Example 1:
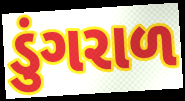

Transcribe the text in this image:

ડુંગરાળ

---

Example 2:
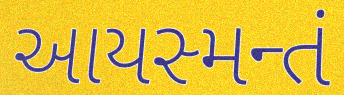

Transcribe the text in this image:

આયસ્મન્તં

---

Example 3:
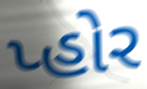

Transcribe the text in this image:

પ્હોર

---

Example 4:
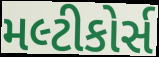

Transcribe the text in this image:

મલ્ટીકોર્સ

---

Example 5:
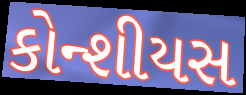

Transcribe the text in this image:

કોન્શીયસ